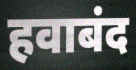
हवाबंद